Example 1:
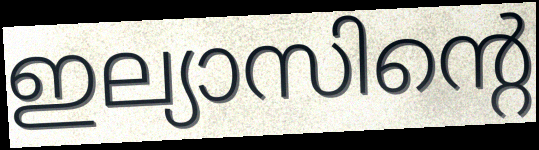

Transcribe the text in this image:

ഇല്യാസിന്റെ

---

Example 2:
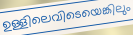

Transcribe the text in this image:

ഉള്ളിലെവിടെയെങ്കിലും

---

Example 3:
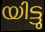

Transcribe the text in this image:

യിട്ടു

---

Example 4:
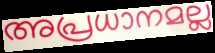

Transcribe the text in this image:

അപ്രധാനമല്ല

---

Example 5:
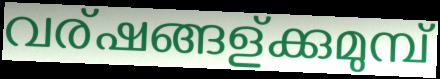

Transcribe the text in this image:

വര്ഷങ്ങള്ക്കുമുമ്പ്